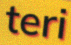
teri